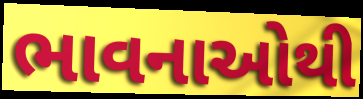
ભાવનાઓથી